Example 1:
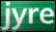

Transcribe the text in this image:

jyre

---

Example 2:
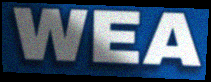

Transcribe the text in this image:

WEA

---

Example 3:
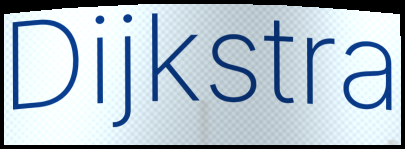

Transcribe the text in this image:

Dijkstra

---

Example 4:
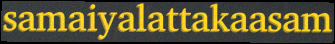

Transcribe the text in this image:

samaiyalattakaasam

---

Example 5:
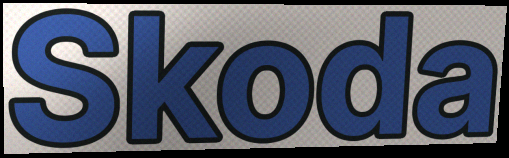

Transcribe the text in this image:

Skoda